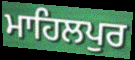
ਮਾਹਿਲਪੁਰ